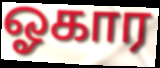
ஓகார